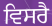
ਵਿਸਰੈ